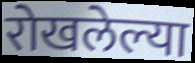
रोखलेल्या